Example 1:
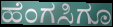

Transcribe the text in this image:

ಹೆಂಗಸಿಗೂ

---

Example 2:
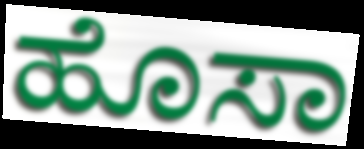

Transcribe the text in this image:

ಹೊಸಾ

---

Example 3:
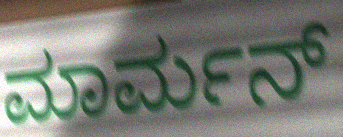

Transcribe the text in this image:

ಮಾರ್ಮನ್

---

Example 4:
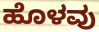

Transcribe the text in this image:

ಹೊಳವು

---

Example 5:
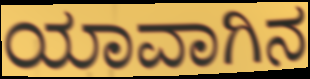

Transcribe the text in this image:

ಯಾವಾಗಿನ